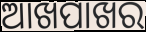
ଆଖପାଖର